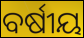
ବର୍ଷୀୟ